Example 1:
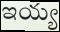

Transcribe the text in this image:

ఇయ్య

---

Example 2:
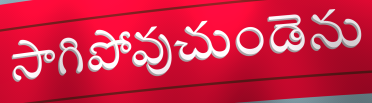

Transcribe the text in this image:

సాగిపోవుచుండెను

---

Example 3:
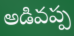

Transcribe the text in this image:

అడివప్ప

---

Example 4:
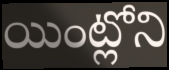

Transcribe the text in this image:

యింట్లోని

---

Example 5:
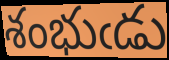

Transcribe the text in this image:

శంభుఁడు